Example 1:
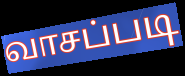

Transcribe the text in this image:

வாசப்படி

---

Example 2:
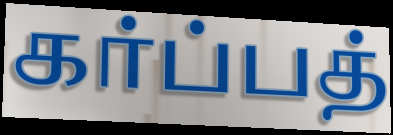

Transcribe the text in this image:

கர்ப்பத்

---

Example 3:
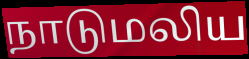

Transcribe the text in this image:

நாடுமலிய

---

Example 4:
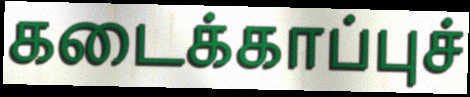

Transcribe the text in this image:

கடைக்காப்புச்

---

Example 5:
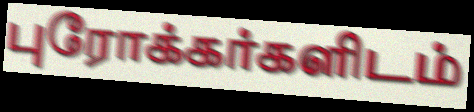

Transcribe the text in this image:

புரோக்கர்களிடம்